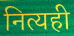
नित्यही